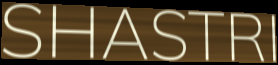
SHASTRI